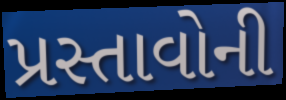
પ્રસ્તાવોની